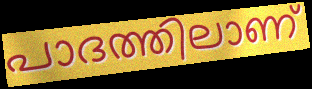
പാദത്തിലാണ്